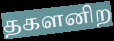
தகளனிற